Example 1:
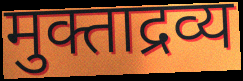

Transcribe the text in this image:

मुक्ताद्रव्य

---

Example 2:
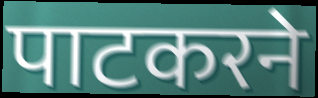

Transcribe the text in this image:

पाटकरने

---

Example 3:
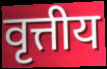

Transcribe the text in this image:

वृत्तीय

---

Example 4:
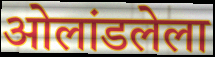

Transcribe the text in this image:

ओलांडलेला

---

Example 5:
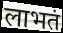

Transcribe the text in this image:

लाभतं